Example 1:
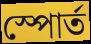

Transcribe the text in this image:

স্পোর্ত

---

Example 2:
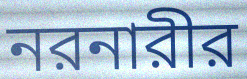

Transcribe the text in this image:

নরনারীর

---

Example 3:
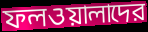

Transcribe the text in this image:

ফলওয়ালাদের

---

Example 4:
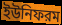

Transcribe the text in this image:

ইউনিফরম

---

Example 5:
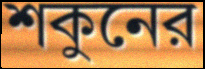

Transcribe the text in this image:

শকুনের